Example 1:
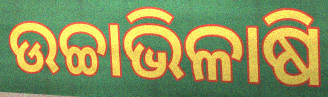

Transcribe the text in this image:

ଉଚ୍ଚାଭିଳାଷି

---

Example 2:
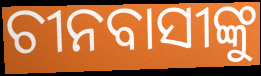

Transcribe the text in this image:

ଚୀନବାସୀଙ୍କୁ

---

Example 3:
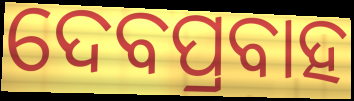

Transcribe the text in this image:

ଦେବପ୍ରବାହ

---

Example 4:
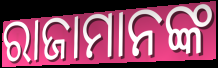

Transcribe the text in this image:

ରାଜାମାନଙ୍କ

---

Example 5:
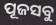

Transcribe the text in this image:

ପୂଜସବୁ